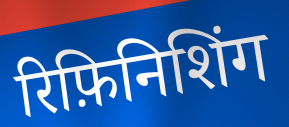
रिफ़िनिशिंग